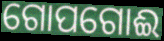
ଗୋପଗୋଈ